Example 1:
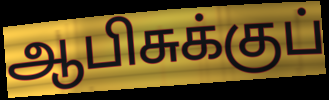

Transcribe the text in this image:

ஆபிசுக்குப்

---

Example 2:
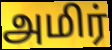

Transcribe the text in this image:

அமிர்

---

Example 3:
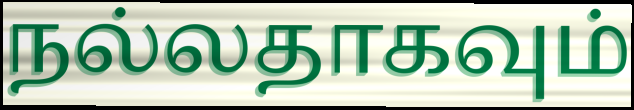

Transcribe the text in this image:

நல்லதாகவும்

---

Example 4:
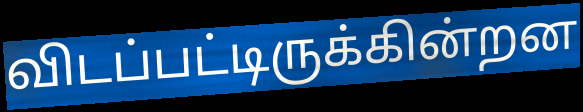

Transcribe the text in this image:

விடப்பட்டிருக்கின்றன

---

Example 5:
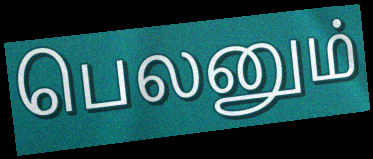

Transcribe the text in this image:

பெலனும்